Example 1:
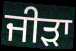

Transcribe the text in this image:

ਜੀੜਾ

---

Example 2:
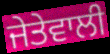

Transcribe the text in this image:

ਜੇਤੇਵਾਲੀ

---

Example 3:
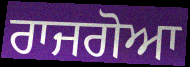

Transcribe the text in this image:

ਰਾਜਗੋਆ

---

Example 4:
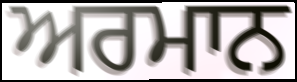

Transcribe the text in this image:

ਅਰਮਾਨ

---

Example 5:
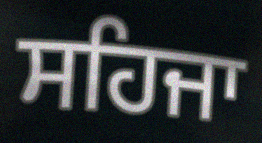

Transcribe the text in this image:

ਸਹਿਜਾ